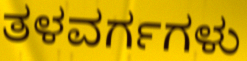
ತಳವರ್ಗಗಳು